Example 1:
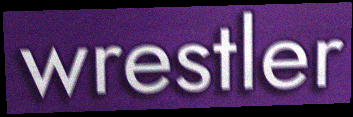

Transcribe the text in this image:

wrestler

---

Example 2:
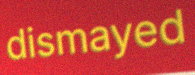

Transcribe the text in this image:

dismayed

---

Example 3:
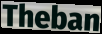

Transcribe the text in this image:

Theban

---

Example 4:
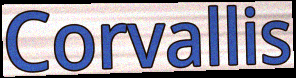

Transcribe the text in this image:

Corvallis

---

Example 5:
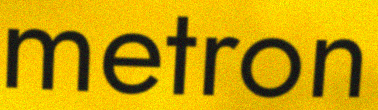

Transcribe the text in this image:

metron